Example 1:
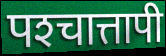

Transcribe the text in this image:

पश्‍चात्तापी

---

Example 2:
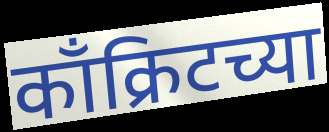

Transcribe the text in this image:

काँक्रिटच्या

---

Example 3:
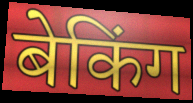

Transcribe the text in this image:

बेकिंग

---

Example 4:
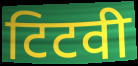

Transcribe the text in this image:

टिटवी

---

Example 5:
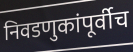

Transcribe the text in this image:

निवडणुकांपूर्वीच